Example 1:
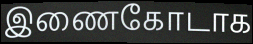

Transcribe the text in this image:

இணைகோடாக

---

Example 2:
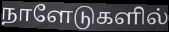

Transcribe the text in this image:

நாளேடுகளில்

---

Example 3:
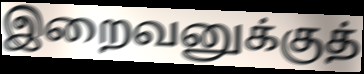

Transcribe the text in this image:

இறைவனுக்குத்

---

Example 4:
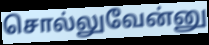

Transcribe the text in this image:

சொல்லுவேன்னு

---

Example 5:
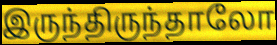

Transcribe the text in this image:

இருந்திருந்தாலோ